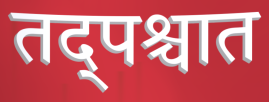
तद्पश्चात